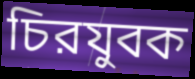
চিরযুবক